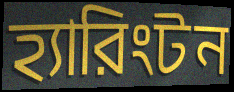
হ্যারিংটন